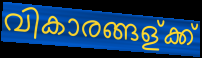
വികാരങ്ങള്ക്ക്